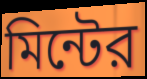
মিন্টের